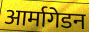
आर्मागेडन